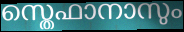
സ്തെഫാനാസും